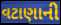
વટાણાની